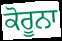
ਕੋਰੂਨਾ